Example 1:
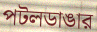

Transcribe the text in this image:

পটলডাঙার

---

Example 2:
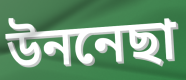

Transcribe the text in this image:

উননেছা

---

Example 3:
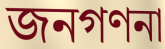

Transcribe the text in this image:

জনগণনা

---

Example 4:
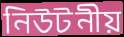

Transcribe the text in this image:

নিউটনীয়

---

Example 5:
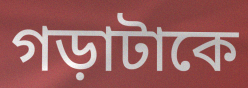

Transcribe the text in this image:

গড়াটাকে